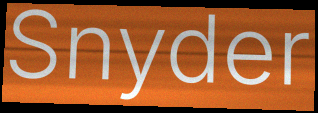
Snyder